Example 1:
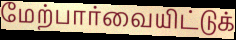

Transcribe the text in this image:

மேற்பார்வையிட்டுக்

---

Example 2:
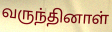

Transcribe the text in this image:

வருந்தினாள்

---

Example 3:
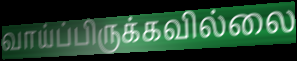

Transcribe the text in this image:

வாய்ப்பிருக்கவில்லை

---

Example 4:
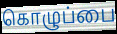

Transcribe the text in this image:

கொழுப்பை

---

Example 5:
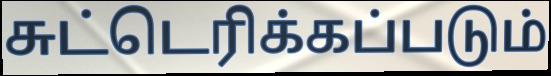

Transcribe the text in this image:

சுட்டெரிக்கப்படும்